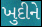
ખુદીને